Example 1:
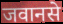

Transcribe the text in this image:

जवानसे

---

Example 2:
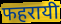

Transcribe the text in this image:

फहरायी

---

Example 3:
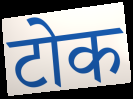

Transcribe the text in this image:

टोक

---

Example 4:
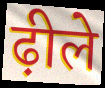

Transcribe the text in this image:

ढ़ीले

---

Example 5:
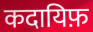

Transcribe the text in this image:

कदायिफ़